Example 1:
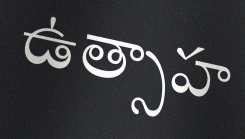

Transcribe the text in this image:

ఉత్సాహ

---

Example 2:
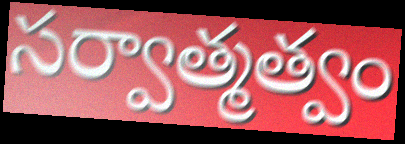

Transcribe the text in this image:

సర్వాత్మత్వం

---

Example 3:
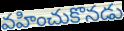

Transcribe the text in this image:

వహించుకొనడు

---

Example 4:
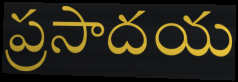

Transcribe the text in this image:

ప్రసాదయ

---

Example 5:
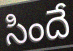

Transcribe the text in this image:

సిందే